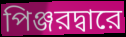
পিঞ্জরদ্বারে